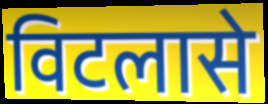
विटलासे